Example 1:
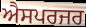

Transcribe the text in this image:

ਐਸਪਰਜਰ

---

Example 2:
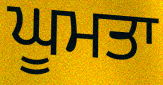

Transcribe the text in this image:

ਘੂਮਤਾ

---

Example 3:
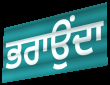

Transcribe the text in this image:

ਭਰਾਉਂਦਾ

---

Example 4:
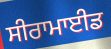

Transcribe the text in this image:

ਸੀਰਾਮਾਈਡ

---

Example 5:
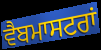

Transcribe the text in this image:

ਵੈਬਮਾਸਟਰਾਂ